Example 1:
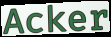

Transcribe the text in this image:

Acker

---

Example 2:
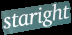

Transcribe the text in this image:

staright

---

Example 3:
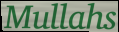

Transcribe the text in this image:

Mullahs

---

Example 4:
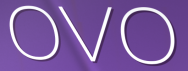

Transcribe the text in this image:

OVO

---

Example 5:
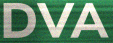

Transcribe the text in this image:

DVA